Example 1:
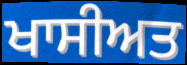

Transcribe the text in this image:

ਖਾਸੀਅਤ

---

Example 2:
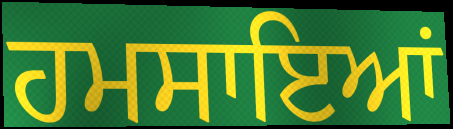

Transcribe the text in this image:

ਹਮਸਾਇਆਂ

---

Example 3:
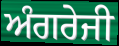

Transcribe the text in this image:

ਅੰਗਰੇਜੀ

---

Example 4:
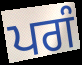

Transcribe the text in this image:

ਪਗੰ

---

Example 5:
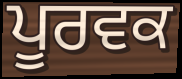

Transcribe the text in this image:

ਪੂਰਵਕ